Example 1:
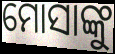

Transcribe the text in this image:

ମୋସାଙ୍କୁ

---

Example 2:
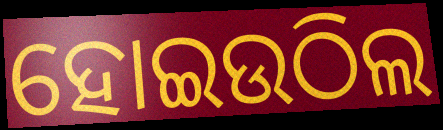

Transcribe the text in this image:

ହୋଇଉଠିଲ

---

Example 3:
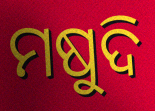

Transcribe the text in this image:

ମଷୁଦି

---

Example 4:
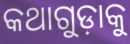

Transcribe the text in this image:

କଥାଗୁଡ଼ାକୁ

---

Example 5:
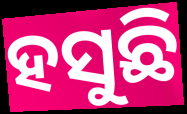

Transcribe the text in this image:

ହସୁଛି